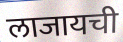
लाजायची